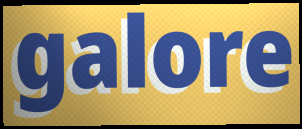
galore